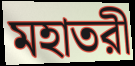
মহাতরী